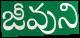
జీవుని